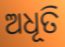
ଅଧୂତି